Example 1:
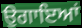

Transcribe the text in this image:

ਉਗਾਇਆਂ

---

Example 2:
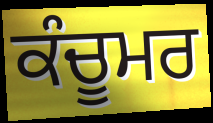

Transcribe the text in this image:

ਕੰਚੂਮਰ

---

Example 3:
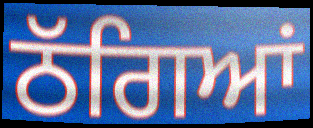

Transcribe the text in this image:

ਠੱਗਿਆਂ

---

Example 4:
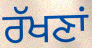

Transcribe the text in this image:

ਰੱਖਣਾਂ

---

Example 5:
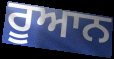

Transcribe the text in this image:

ਰੂਆਨ